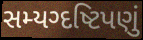
સમ્યગ્દષ્ટિપણું